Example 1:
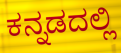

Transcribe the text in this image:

ಕನ್ನಡದಲ್ಲಿ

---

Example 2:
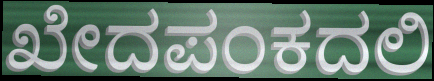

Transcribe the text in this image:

ಖೇದಪಂಕದಲಿ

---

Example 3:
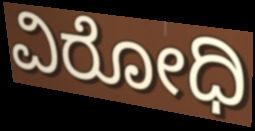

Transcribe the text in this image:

ವಿರೋಧಿ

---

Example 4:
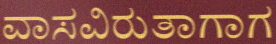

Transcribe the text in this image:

ವಾಸವಿರುತಾಗಾಗ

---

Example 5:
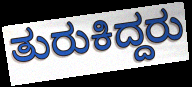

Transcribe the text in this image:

ತುರುಕಿದ್ದರು